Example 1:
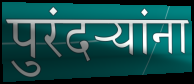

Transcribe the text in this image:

पुरंदऱ्यांना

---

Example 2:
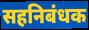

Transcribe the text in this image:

सहनिबंधक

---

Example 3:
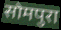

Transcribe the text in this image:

सोमपुरा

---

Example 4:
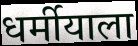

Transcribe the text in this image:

धर्मीयाला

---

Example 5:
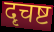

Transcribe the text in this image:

दृचष्ट